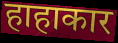
हाहाकार